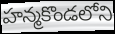
హన్మకొండలోని